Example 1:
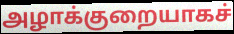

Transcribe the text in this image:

அழாக்குறையாகச்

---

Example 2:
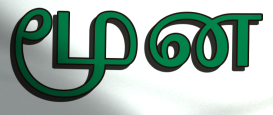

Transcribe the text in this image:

மூன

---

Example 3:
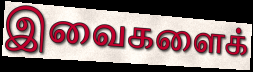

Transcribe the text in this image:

இவைகளைக்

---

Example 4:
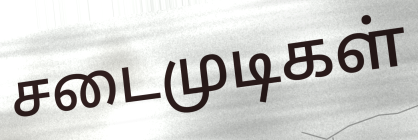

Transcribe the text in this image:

சடைமுடிகள்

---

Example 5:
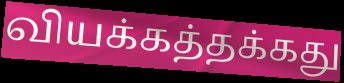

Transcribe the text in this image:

வியக்கத்தக்கது